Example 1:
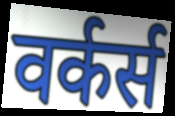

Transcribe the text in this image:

वर्कर्स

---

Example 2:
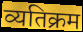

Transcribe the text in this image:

व्यतिक्रम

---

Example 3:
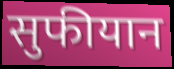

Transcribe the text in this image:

सुफीयान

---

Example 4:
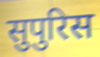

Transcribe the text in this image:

सुपुरिस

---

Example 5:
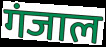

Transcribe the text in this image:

गंजाल